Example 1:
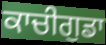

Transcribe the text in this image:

ਕਾਚੀਗੁਡਾ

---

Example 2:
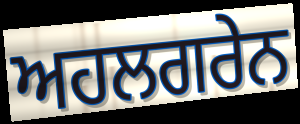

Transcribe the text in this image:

ਅਹਲਗਰੇਨ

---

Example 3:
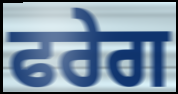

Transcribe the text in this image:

ਫਰੇਗ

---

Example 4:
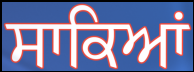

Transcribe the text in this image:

ਸਾਕਿਆਂ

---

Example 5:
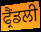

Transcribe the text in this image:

ਫ੍ਰੈਂਡਲੀ